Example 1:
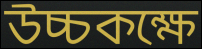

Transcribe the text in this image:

উচ্চকক্ষে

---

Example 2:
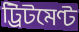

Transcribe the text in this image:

ট্রিটমেণ্ট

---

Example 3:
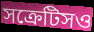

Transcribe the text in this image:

সক্রেটিসও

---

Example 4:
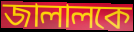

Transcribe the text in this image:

জালালকে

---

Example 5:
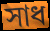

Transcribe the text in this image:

সাধ